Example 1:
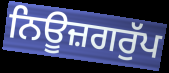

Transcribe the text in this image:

ਨਿਊਜ਼ਗਰੁੱਪ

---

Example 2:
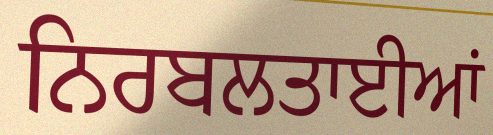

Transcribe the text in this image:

ਨਿਰਬਲਤਾਈਆਂ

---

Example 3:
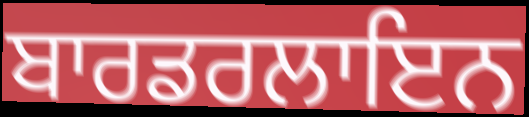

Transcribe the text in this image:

ਬਾਰਡਰਲਾਇਨ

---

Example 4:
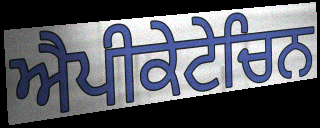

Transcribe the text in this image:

ਐਪੀਕੇਟੇਚਿਨ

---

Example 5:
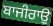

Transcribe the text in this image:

ਬਾਜੀਰਾਉ